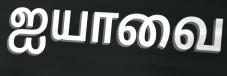
ஐயாவை